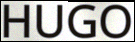
HUGO